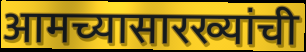
आमच्यासारख्यांची